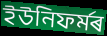
ইউনিফৰ্মৰ